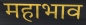
महाभाव